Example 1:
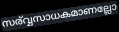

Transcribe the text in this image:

സര്വ്വസാധകമാണല്ലോ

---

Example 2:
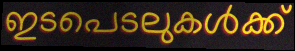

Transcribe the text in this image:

ഇടപെടലുകൾക്ക്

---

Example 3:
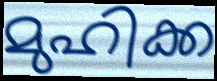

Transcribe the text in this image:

മുഹിക്ക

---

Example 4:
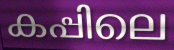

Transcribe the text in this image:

കപ്പിലെ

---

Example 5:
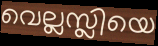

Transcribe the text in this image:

വെല്ലസ്ലിയെ